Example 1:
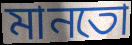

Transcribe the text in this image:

মানতো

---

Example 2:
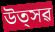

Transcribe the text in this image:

উত্সৱ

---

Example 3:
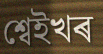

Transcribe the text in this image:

শ্বেইখৰ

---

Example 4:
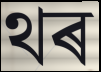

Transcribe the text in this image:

থৰ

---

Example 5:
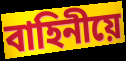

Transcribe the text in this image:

বাহিনীয়ে